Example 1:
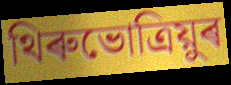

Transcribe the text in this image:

থিৰুভোত্ৰিয়ুৰ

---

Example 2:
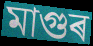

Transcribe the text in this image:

মাগুৰ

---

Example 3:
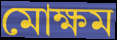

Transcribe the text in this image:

মোক্ষম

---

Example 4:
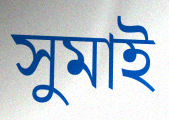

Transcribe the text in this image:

সুমাই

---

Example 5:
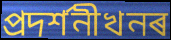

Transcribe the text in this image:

প্ৰদৰ্শনীখনৰ